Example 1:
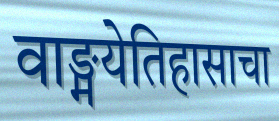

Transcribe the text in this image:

वाङ्मयेतिहासाचा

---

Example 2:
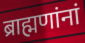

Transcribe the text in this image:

ब्राह्मणांनां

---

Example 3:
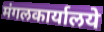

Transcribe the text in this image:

मंगलकार्यालये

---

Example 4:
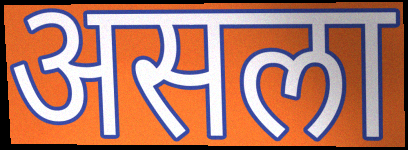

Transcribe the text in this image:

असला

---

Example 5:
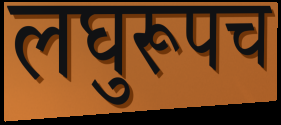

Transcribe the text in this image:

लघुरूपच